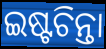
ଇଷ୍ଟଚିନ୍ତା